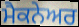
ਮੈਕਨੇਅਰ